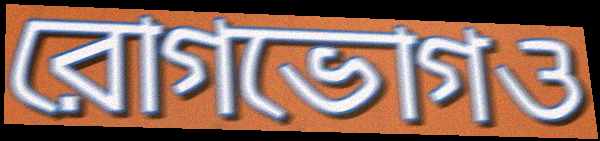
রোগভোগও